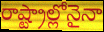
రాష్ట్రాల్లోనైనా